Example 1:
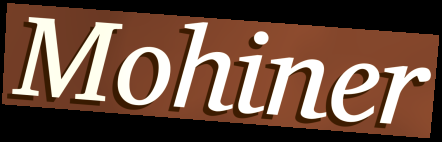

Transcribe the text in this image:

Mohiner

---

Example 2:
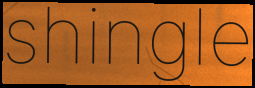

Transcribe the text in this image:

shingle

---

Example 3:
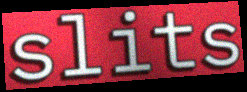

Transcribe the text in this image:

slits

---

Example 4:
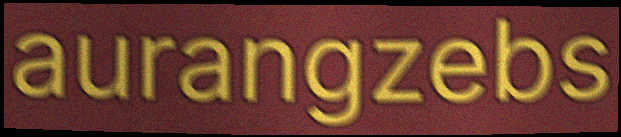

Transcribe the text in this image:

aurangzebs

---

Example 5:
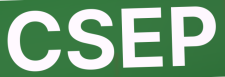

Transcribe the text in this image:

CSEP